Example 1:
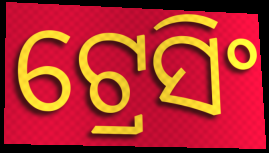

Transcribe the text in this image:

ଟ୍ରେସିଂ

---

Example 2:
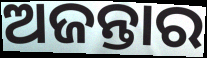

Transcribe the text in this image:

ଅଜନ୍ତାର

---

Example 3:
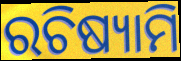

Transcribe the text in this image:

ରଚିଷ୍ୟାମି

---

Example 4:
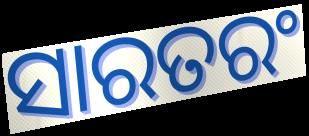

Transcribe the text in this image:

ସାରତରଂ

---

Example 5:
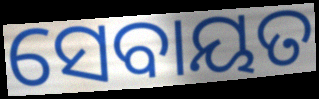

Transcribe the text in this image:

ସେବାୟତ